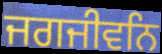
ਜਗਜੀਵਨਿ